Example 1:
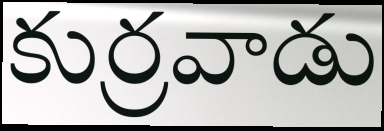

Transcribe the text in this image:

కుర్రవాడు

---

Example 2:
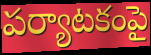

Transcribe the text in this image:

పర్యాటకంపై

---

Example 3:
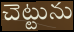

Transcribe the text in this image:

చెట్టును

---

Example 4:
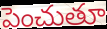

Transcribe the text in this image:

పెంచుతూ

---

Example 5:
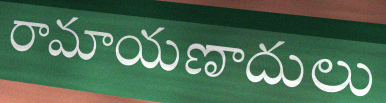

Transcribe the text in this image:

రామాయణాదులు